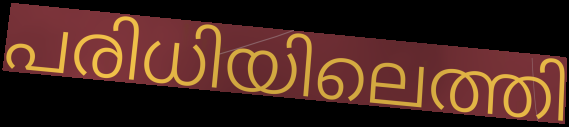
പരിധിയിലെത്തി